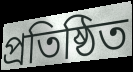
প্রতিষ্ঠিত